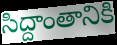
సిద్దాంతానికి